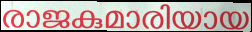
രാജകുമാരിയായ